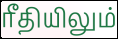
ரீதியிலும்